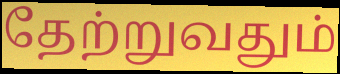
தேற்றுவதும்